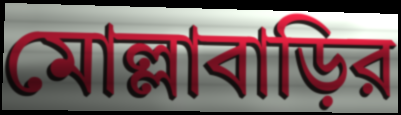
মোল্লাবাড়ির